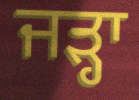
ਜੜ੍ਹਾ